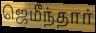
ஜெமீந்தார்